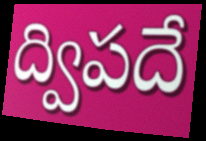
ద్విపదే